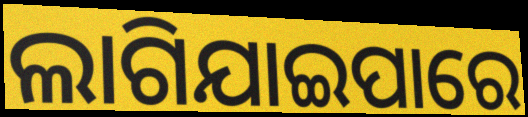
ଲାଗିଯାଇପାରେ